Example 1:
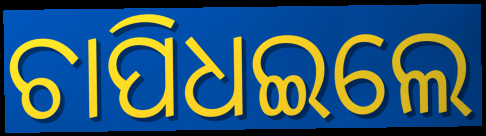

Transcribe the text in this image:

ଚାପିଧଇଲେ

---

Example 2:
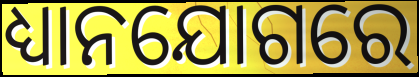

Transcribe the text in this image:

ଧ୍ୟାନଯୋଗରେ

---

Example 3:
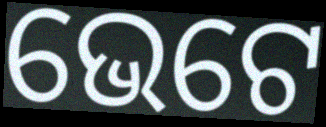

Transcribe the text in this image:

ଭେଟେ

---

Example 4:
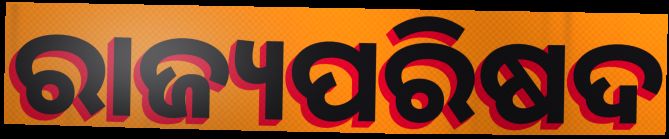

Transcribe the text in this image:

ରାଜ୍ୟପରିଷଦ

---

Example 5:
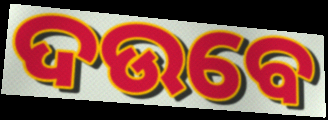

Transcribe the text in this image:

ଦଉବେ